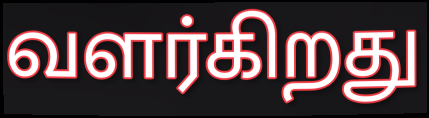
வளர்கிறது